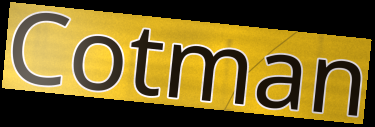
Cotman